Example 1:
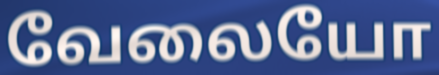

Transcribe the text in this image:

வேலையோ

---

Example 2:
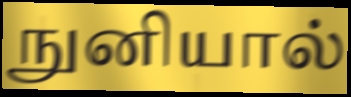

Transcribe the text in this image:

நுனியால்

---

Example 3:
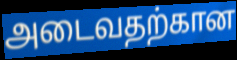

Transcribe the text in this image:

அடைவதற்கான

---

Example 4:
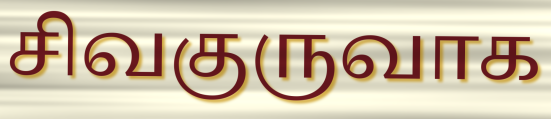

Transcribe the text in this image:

சிவகுருவாக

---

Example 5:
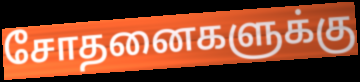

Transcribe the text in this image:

சோதனைகளுக்கு